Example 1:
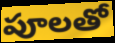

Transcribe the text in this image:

పూలతో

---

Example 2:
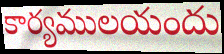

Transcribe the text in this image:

కార్యములయందు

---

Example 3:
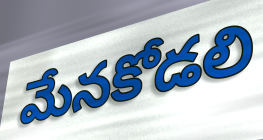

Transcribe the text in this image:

మేనకోడలి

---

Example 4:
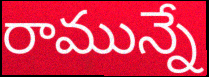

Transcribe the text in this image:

రామున్నే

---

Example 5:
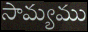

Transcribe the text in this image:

సామ్యము